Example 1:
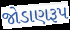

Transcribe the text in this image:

જોડાણરૂપ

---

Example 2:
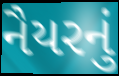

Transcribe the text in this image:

નૈયરનું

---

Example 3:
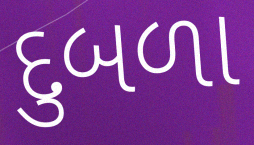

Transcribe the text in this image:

દુબળા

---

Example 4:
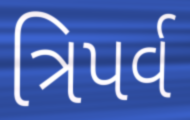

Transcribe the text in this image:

ત્રિપર્વ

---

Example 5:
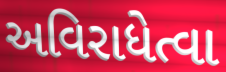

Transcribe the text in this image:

અવિરાધેત્વા